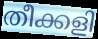
തീക്കളി